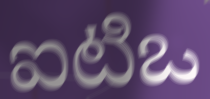
ఐటిఒ